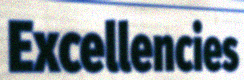
Excellencies